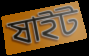
ষাইট